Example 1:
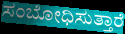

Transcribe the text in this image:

ಸಂಬೋಧಿಸುತ್ತಾರೆ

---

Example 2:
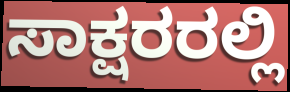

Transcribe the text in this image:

ಸಾಕ್ಷರರಲ್ಲಿ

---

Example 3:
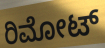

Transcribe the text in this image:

ರಿಮೋಟ್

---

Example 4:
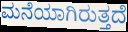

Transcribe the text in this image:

ಮನೆಯಾಗಿರುತ್ತದೆ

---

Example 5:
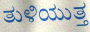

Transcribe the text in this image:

ತುಳಿಯುತ್ತ